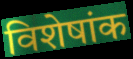
विशेषांक